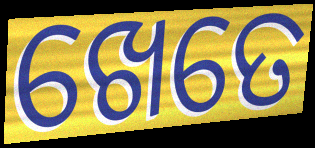
ଖେତେ